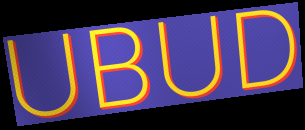
UBUD